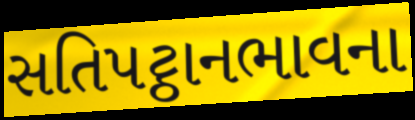
સતિપટ્ઠાનભાવના